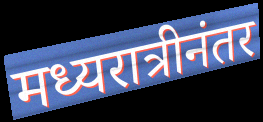
मध्यरात्रीनंतर